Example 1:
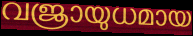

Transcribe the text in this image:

വജ്രായുധമായ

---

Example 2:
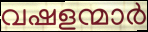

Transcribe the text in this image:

വഷളന്മാർ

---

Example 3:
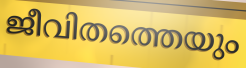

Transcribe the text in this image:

ജീവിതത്തെയും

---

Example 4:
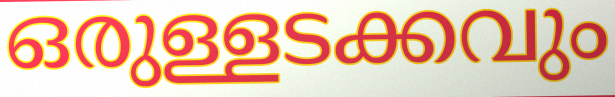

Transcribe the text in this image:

ഒരുള്ളടക്കവും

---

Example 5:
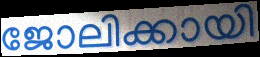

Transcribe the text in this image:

ജോലിക്കായി